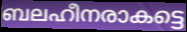
ബലഹീനരാകട്ടെ